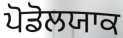
ਪੋਡੋਲਯਾਕ